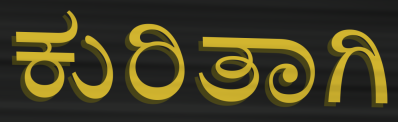
ಕುರಿತಾಗಿ